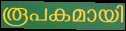
രൂപകമായി